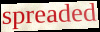
spreaded